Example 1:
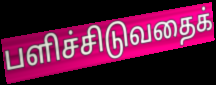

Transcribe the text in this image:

பளிச்சிடுவதைக்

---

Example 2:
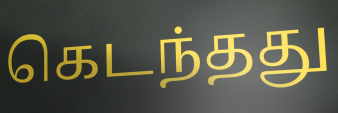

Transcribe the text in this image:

கெடந்தது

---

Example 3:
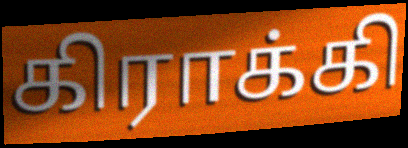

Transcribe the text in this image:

கிராக்கி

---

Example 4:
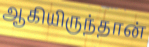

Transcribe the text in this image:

ஆகியிருந்தான்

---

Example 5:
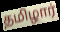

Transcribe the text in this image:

தமிழார்